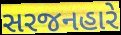
સરજનહારે